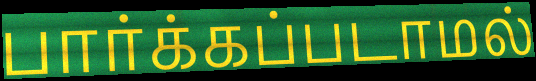
பார்க்கப்படாமல்